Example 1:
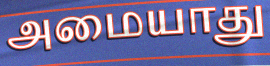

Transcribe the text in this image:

அமையாது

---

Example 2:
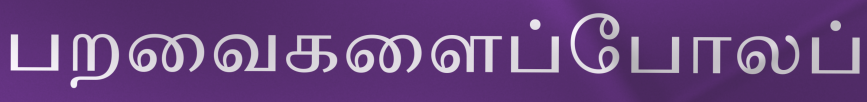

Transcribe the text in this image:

பறவைகளைப்போலப்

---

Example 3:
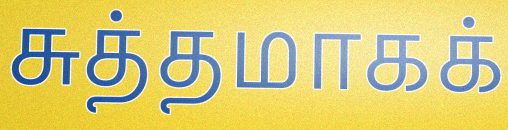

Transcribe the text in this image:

சுத்தமாகக்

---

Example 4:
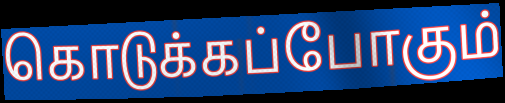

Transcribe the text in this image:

கொடுக்கப்போகும்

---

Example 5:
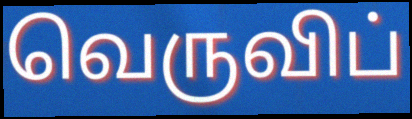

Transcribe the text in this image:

வெருவிப்